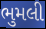
ભુમલી